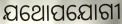
ଯଥୋପଯୋଗୀ